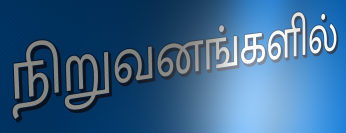
நிறுவனங்களில்